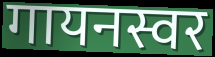
गायनस्वर